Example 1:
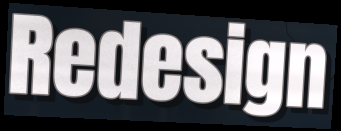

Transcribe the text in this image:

Redesign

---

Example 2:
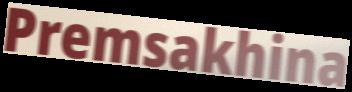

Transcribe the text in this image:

Premsakhina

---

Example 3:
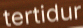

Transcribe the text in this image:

tertidur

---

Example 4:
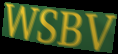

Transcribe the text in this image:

WSBV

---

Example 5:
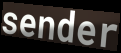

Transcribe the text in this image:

sender